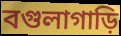
বগুলাগাড়ি